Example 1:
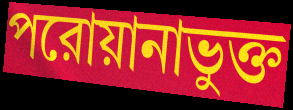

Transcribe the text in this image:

পরোয়ানাভুক্ত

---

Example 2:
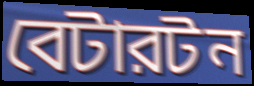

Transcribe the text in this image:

বেটারটন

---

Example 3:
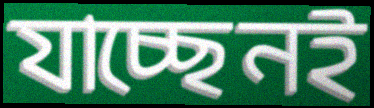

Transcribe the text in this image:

যাচ্ছেনই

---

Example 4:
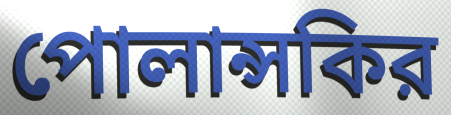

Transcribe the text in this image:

পোলান্সকির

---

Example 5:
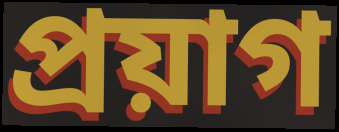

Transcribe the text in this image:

প্রয়াগ